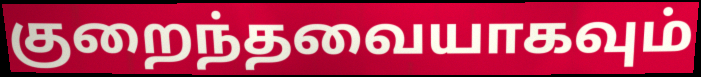
குறைந்தவையாகவும்